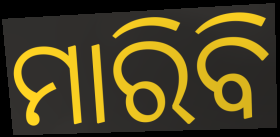
ମାରିବି